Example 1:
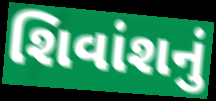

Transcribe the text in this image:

શિવાંશનું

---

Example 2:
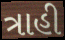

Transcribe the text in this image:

ત્રાહી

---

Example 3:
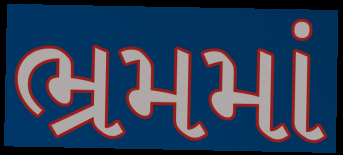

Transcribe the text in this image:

ભ્રમમાં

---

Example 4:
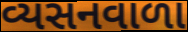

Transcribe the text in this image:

વ્યસનવાળા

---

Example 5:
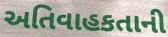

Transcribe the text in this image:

અતિવાહકતાની